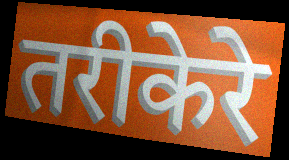
तरीकेरे